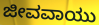
ಜೀವವಾಯು